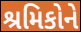
શ્રમિકોને